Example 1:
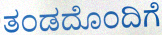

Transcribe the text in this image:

ತಂಡದೊಂದಿಗೆ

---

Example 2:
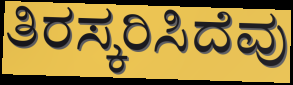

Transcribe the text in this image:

ತಿರಸ್ಕರಿಸಿದೆವು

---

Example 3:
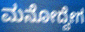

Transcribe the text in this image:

ಮನೋದ್ವೇಗ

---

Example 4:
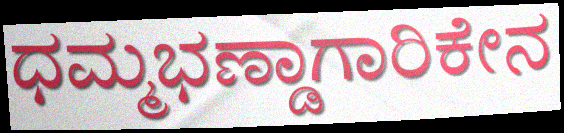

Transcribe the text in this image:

ಧಮ್ಮಭಣ್ಡಾಗಾರಿಕೇನ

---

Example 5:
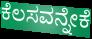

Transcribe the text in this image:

ಕೆಲಸವನ್ನೇಕೆ